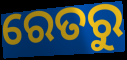
ରେତରୁ